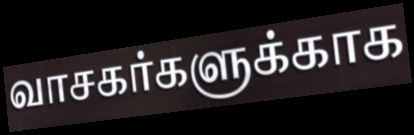
வாசகர்களுக்காக